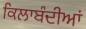
ਕਿਲਾਬੰਦੀਆਂ